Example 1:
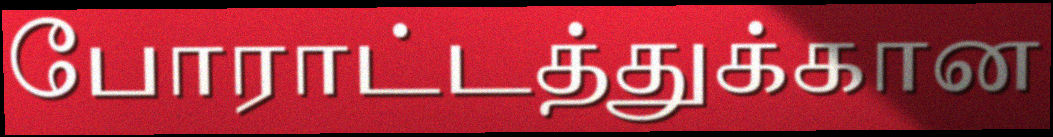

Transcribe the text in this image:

போராட்டத்துக்கான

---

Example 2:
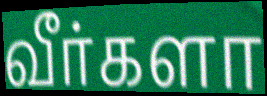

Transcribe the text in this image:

வீர்களா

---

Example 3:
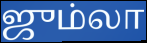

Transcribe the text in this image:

ஜும்லா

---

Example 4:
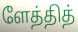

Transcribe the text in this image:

ளேத்தித்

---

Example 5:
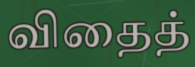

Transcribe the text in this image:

விதைத்